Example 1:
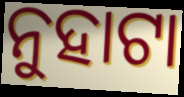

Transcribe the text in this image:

ନୁହାଟା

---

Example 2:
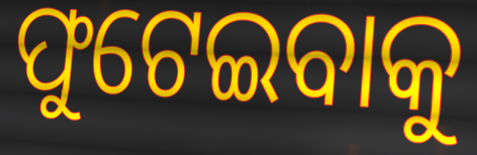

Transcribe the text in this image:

ଫୁଟେଇବାକୁ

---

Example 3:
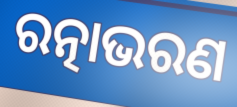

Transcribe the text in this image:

ରତ୍ନାଭରଣ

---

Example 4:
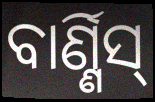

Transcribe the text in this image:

ବାର୍ଣ୍ଣିସ୍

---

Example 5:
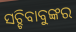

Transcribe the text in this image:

ସଚ୍ଚିବାବୁଙ୍କର